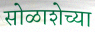
सोळाशेच्या